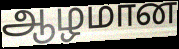
ஆழமான